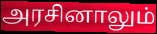
அரசினாலும்